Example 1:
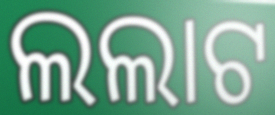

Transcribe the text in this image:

ଲଲାଟ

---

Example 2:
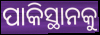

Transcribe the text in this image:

ପାକିସ୍ଥାନକୁ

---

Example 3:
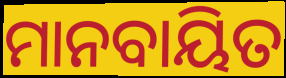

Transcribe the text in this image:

ମାନବାୟିତ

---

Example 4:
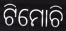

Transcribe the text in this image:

ଟିମୋଚି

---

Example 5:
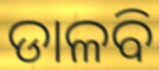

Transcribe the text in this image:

ଡାଳବି